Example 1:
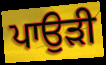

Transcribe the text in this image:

ਪਾਉੜੀ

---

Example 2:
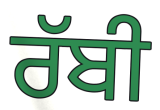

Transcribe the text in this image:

ਰੱਬੀ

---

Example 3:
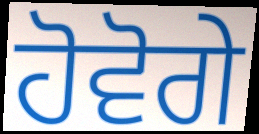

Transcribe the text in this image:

ਹੋਵੋਗੇ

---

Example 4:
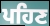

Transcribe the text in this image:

ਪਹਿਣ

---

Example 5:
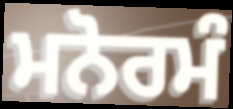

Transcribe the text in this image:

ਮਨੋਰਮੰ